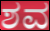
ಶವ